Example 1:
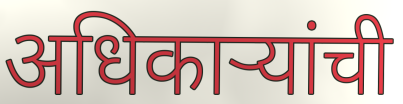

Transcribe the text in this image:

अधिकार्‍यांची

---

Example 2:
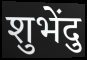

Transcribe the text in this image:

शुभेंदु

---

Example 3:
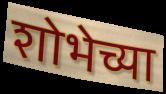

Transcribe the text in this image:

शोभेच्या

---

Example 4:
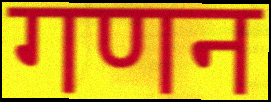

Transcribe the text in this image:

गणन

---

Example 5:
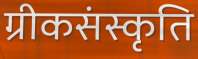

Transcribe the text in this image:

ग्रीकसंस्कृति